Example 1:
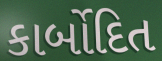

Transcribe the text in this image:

કાર્બોદિત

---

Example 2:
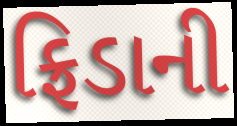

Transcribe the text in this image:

ફ્રિડાની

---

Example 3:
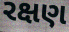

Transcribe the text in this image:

રક્ષણ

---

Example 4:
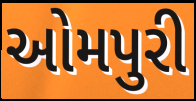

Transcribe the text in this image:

ઓમપુરી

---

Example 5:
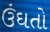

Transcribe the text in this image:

ઉંઘતો